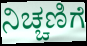
ನಿಚ್ಚಣಿಗೆ